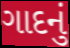
ગાદનું